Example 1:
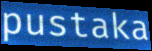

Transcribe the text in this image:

pustaka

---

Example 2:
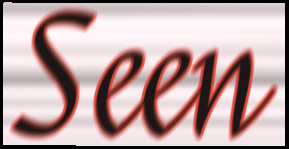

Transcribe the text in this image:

Seen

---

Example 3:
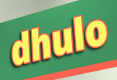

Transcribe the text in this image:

dhulo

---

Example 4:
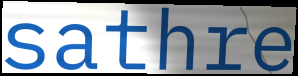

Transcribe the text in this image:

sathre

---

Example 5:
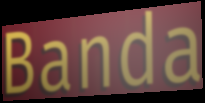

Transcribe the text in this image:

Banda